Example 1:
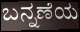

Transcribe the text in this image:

ಬನ್ನಣೆಯ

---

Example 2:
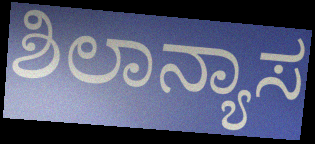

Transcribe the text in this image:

ಶಿಲಾನ್ಯಾಸ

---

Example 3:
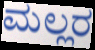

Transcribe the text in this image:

ಮಲ್ಲರ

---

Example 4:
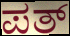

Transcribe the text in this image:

ಪತ್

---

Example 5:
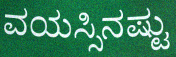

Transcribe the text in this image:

ವಯಸ್ಸಿನಷ್ಟು